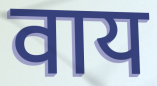
वाय